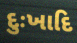
દુઃખાદિ